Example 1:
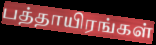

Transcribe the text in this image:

பத்தாயிரங்கள்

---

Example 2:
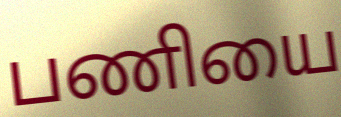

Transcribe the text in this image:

பணியை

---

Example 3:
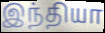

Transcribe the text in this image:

இந்தியா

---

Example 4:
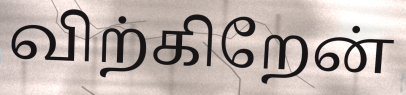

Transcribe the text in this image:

விற்கிறேன்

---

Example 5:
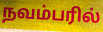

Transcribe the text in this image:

நவம்பரில்